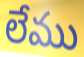
లేము